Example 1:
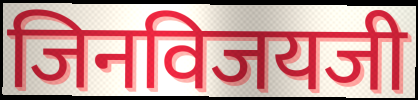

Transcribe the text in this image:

जिनविजयजी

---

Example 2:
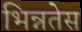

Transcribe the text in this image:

भिन्नतेस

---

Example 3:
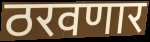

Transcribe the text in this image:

ठरवणार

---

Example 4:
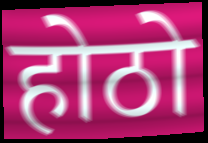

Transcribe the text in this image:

होठो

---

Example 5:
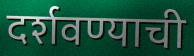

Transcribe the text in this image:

दर्शवण्याची